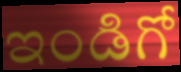
ఇండిగో